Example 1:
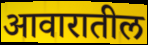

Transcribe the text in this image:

आवारातील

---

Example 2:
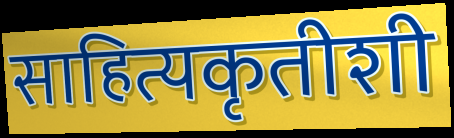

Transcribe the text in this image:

साहित्यकृतीशी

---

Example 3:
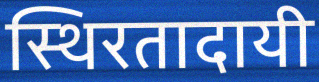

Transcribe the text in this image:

स्थिरतादायी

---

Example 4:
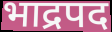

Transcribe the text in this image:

भाद्रपद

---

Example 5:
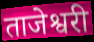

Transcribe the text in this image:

ताजेश्वरी